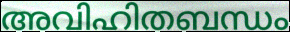
അവിഹിതബന്ധം